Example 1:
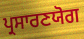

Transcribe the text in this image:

ਪ੍ਰਸਾਰਣਯੋਗ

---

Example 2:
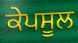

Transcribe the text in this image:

ਕੇਪਸੂਲ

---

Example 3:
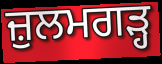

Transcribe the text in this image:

ਜ਼ੁਲਮਗੜ੍ਹ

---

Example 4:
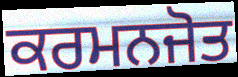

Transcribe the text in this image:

ਕਰਮਨਜੋਤ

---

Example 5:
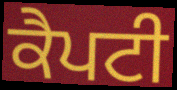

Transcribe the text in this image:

ਕੈਪਟੀ